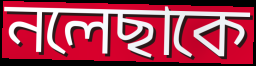
নলেছাকে